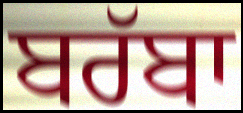
ਬਰੱਬਾ